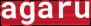
agaru